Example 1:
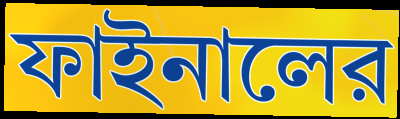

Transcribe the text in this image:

ফাইনালের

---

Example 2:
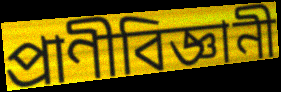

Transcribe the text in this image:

প্রাণীবিজ্ঞানী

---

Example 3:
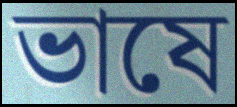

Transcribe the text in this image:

ভাষে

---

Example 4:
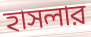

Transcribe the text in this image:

হাসলার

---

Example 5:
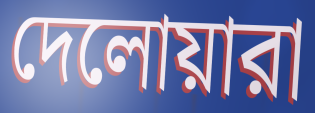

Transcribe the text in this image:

দেলোয়ারা